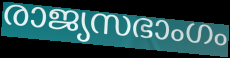
രാജ്യസഭാംഗം